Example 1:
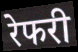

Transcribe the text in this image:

रेफरी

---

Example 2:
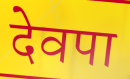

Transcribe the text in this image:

देवपा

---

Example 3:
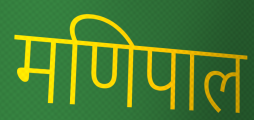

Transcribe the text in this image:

मणिपाल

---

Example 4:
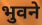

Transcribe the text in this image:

भुवने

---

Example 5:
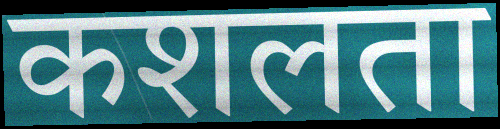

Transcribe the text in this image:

कशलता